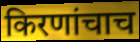
किरणांचाच